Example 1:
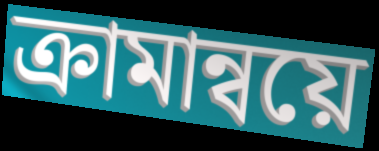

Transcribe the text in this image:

ক্রামান্বয়ে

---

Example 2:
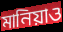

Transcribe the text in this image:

মানিয়াও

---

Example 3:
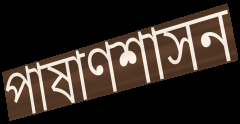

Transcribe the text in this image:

পাষাণশাসন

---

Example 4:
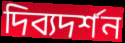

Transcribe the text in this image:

দিব্যদর্শন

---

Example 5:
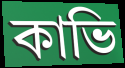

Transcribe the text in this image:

কাভি